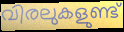
വിരലുകളുണ്ട്